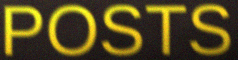
POSTS